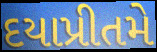
દયાપ્રીતમે